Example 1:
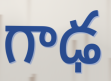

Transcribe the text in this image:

గాఢ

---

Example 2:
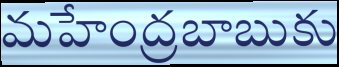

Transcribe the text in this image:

మహేంద్రబాబుకు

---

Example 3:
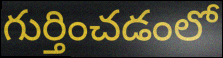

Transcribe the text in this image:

గుర్తించడంలో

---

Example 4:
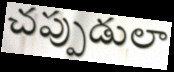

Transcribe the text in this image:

చప్పుడులా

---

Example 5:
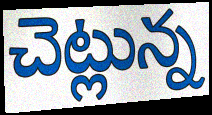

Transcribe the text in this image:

చెట్లున్న